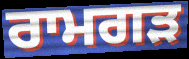
ਰਾਮਗੜ